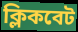
ক্লিকবেট